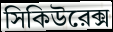
সিকিউরেক্স